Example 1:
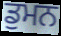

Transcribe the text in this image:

ਡੁਮਨ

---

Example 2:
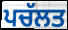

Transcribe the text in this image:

ਪਚੱਲਤ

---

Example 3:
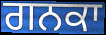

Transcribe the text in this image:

ਗਨਕਾ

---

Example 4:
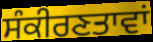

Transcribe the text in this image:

ਸੰਕੀਰਣਤਾਵਾਂ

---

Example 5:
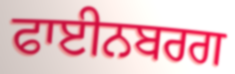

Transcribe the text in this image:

ਫਾਈਨਬਰਗ